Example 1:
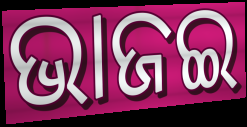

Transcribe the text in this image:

ଭାଜଇ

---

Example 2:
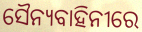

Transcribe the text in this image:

ସୈନ୍ଯବାହିନୀରେ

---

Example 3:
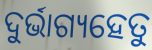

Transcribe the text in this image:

ଦୁର୍ଭାଗ୍ୟହେତୁ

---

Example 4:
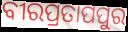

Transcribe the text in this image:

ବୀରପ୍ରତାପପୁର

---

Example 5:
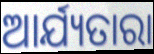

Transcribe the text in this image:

ଆର୍ଯ୍ୟତାରା